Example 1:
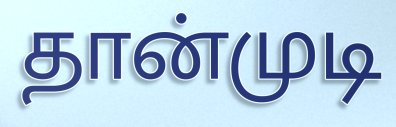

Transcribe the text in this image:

தான்முடி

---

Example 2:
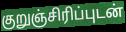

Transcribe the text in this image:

குறுஞ்சிரிப்புடன்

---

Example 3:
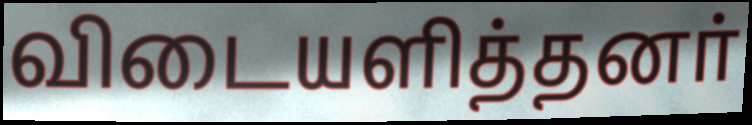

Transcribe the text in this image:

விடையளித்தனர்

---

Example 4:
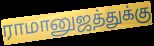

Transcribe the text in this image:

ராமானுஜத்துக்கு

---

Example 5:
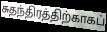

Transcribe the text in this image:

சுதந்திரத்திற்காகப்